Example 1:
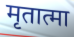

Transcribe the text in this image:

मृतात्मा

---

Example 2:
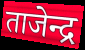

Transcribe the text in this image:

ताजेन्द्र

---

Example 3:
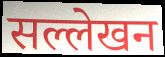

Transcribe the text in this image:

सल्लेखन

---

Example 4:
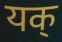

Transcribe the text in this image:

यक्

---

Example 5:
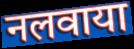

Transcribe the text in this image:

नलवाया